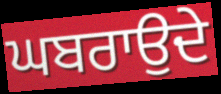
ਘਬਰਾਉਦੇ